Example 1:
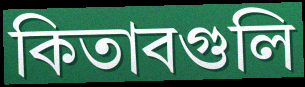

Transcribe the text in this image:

কিতাবগুলি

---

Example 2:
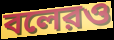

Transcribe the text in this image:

বলেরও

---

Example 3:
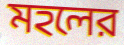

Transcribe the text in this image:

মহলের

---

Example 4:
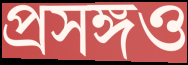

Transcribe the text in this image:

প্রসঙ্গও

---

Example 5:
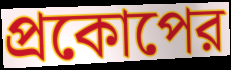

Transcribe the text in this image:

প্রকোপের